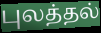
புலத்தல்